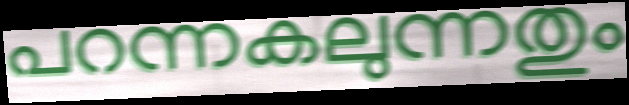
പറന്നകലുന്നതും